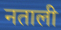
नताली